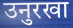
उनुरखा